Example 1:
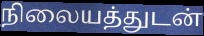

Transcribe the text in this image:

நிலையத்துடன்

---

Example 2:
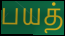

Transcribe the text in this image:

பயத்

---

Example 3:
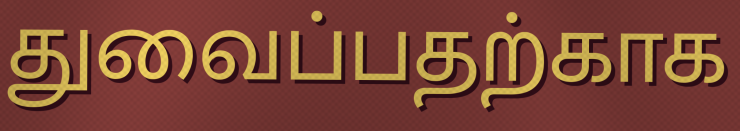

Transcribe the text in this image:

துவைப்பதற்காக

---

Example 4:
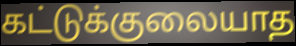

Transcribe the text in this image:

கட்டுக்குலையாத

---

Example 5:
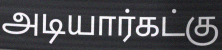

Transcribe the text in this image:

அடியார்கட்கு